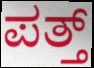
ಪತ್ತ್